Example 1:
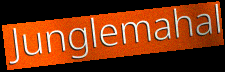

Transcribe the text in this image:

Junglemahal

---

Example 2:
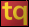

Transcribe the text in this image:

tq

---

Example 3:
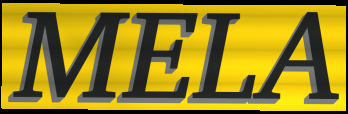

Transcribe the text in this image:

MELA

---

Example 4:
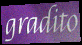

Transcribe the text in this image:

gradito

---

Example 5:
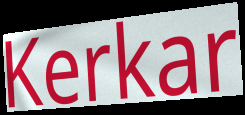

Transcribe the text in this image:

Kerkar